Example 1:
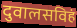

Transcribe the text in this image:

दुवालसविहं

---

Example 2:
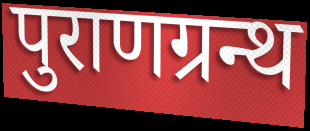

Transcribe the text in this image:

पुराणग्रन्थ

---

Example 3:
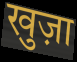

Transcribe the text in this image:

खुज़ा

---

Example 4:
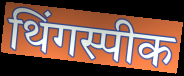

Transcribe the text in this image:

थिंगस्पीक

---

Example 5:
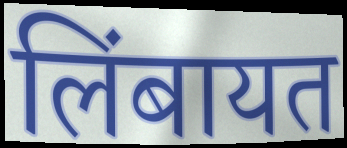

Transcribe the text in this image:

लिंबायत